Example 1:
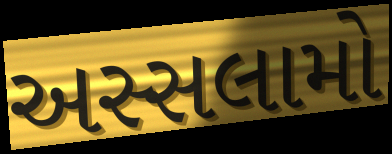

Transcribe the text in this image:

અસ્સલામો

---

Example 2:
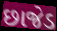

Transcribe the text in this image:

છાજેડ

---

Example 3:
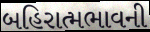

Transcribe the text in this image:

બહિરાત્મભાવની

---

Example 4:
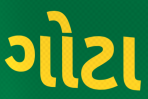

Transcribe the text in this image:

ગોટા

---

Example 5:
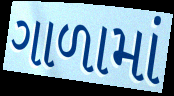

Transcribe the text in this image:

ગાળામાં